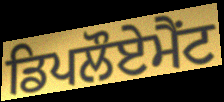
ਡਿਪਲੌਏਮੈਂਟ